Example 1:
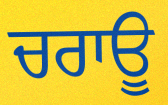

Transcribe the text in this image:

ਚਰਾਊ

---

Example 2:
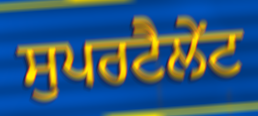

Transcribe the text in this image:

ਸੁਪਰਟੈਲੇਂਟ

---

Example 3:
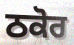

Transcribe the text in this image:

ਠਕੋਰ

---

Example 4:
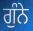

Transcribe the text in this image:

ਗੁੰਨੇ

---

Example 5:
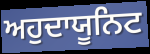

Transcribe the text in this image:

ਅਹੁਦਾਯੂਨਿਟ